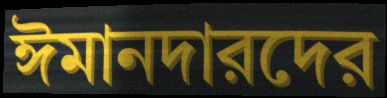
ঈমানদারদের